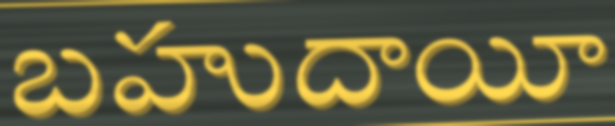
బహుదాయీ